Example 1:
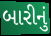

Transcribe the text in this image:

બારીનું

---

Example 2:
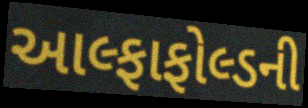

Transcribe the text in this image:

આલ્ફાફોલ્ડની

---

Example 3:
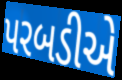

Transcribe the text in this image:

પરબડીએ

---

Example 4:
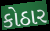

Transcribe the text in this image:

કોઠાર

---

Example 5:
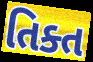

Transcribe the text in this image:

તિક્ત